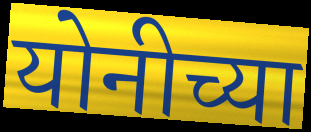
योनीच्या